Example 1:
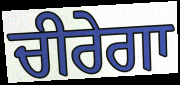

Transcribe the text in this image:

ਚੀਰੇਗਾ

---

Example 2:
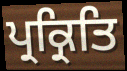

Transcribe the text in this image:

ਪ੍ਰਕ੍ਰਿਤਿ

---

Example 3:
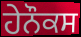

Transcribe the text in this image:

ਹੇਨੌਕਸ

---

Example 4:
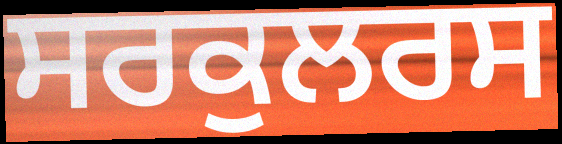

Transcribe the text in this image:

ਸਰਕੁਲਰਸ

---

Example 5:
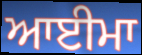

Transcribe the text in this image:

ਆਈਮਾ